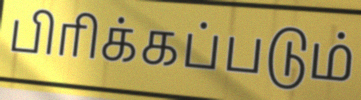
பிரிக்கப்படும்